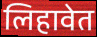
लिहावेत